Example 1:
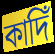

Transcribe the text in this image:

কাদিঁ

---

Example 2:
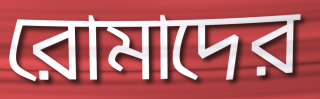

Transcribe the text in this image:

রোমাদের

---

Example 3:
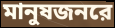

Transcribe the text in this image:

মানুষজনরে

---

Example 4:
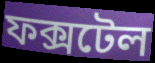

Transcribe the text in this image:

ফক্সটেল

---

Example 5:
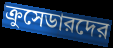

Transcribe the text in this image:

ক্রুসেডারদের